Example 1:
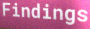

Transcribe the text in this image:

Findings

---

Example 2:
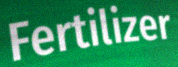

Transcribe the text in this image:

Fertilizer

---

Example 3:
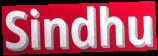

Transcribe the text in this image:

Sindhu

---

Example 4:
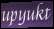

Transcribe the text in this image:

upyukt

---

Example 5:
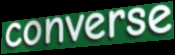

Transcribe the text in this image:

converse